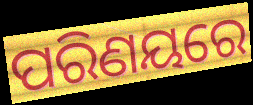
ପରିଣୟରେ